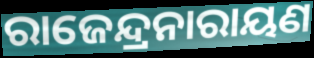
ରାଜେନ୍ଦ୍ରନାରାୟଣ